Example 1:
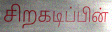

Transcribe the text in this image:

சிறகடிப்பின்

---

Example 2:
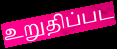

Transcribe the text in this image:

உறுதிப்பட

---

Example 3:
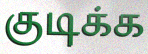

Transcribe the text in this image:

குடிக்க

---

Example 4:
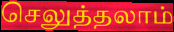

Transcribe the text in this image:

செலுத்தலாம்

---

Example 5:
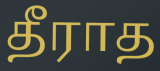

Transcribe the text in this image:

தீராத